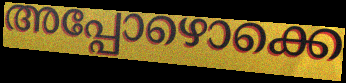
അപ്പോഴൊക്കെ